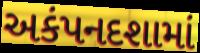
અકંપનદશામાં